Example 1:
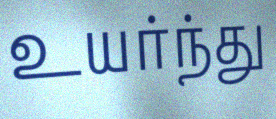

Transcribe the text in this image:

உயர்ந்து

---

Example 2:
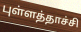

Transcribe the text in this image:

புள்ளத்தாச்சி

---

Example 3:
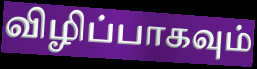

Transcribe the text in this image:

விழிப்பாகவும்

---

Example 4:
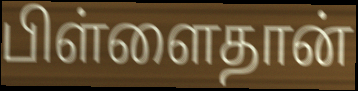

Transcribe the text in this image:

பிள்ளைதான்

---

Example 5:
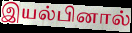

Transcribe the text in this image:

இயல்பினால்